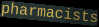
pharmacists